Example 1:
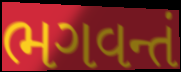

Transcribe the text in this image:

ભગવન્તં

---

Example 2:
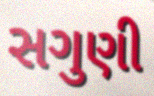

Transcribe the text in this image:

સગુણી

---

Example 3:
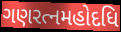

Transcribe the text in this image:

ગણરત્નમહોદધિ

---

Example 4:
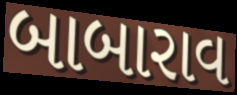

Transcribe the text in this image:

બાબારાવ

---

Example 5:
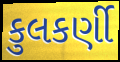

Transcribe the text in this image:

કુલકર્ણી